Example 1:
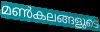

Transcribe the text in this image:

മൺകലങ്ങളുടെ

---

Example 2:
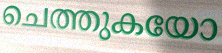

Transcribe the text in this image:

ചെത്തുകയോ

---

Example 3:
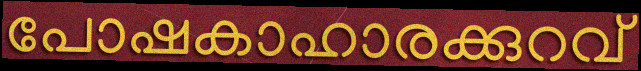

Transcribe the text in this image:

പോഷകാഹാരക്കുറവ്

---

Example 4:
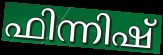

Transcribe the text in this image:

ഫിന്നിഷ്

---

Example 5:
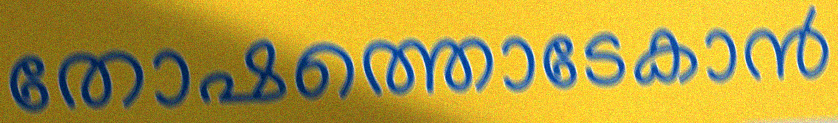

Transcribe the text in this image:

തോഷത്തൊടേകാൻ